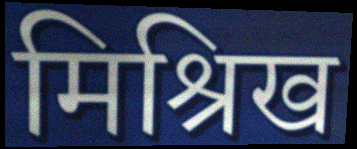
मिश्रिख